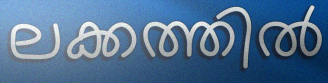
ലക്കത്തിൽ